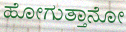
ಹೋಗುತ್ತಾನೋ